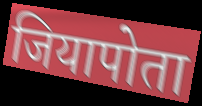
जियापोता